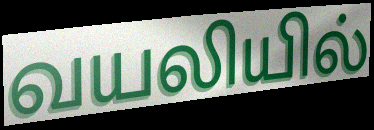
வயலியில்